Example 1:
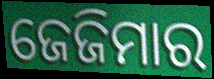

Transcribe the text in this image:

ଜେଜିମାର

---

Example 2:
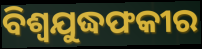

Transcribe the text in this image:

ବିଶ୍ୱଯୁଦ୍ଧଫକୀର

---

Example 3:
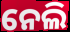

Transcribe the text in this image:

ନେଲି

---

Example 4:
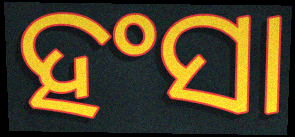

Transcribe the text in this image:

ହଂସା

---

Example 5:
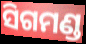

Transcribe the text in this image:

ସିଗମଣ୍ଡ